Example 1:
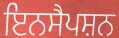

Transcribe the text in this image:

ਇਨਸੈਪਸ਼ਨ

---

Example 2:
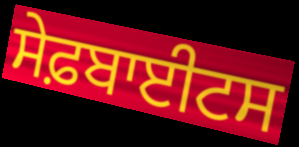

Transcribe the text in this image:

ਸੇਫ਼ਬਾਈਟਸ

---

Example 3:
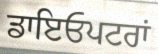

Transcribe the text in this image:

ਡਾਇਓਪਟਰਾਂ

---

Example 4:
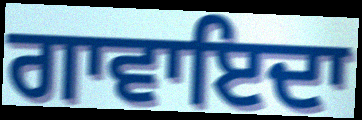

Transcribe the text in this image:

ਗਾਵਾਇਦਾ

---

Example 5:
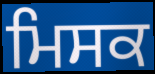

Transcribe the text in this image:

ਮਿਸਕ